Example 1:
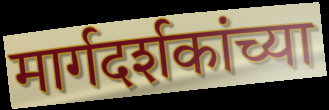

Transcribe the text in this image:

मार्गदर्शकांच्या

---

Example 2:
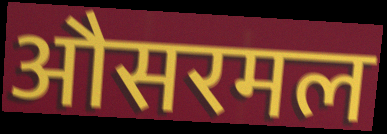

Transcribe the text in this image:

औसरमल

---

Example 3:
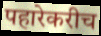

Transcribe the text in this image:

पहारेकरीच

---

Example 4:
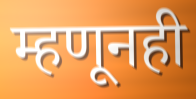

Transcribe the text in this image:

म्हणूनही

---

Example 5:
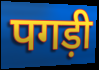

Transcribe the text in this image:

पगड़ी